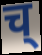
च्